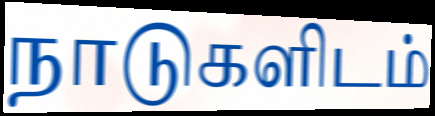
நாடுகளிடம்